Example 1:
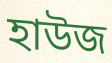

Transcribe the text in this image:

হাউজ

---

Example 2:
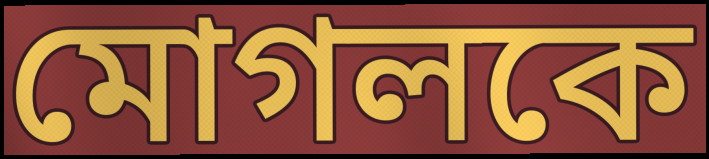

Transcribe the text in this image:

মোগলকে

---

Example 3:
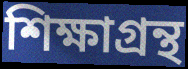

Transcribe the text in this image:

শিক্ষাগ্রন্থ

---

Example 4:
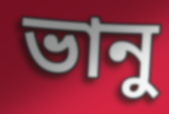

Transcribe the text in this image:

ভানু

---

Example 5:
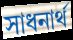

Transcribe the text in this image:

সাধনার্থ